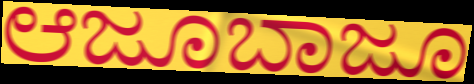
ಆಜೂಬಾಜೂ